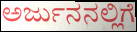
ಅರ್ಜುನನಲ್ಲಿಗೆ